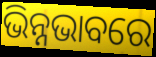
ଭିନ୍ନଭାବରେ